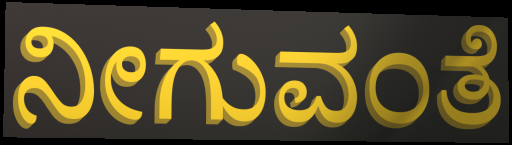
ನೀಗುವಂತೆ